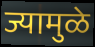
ज्यामुळे